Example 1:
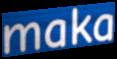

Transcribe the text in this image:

maka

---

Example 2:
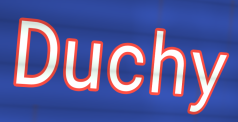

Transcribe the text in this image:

Duchy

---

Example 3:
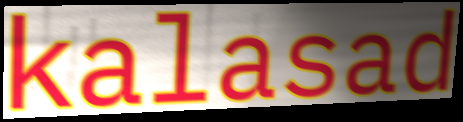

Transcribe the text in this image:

kalasad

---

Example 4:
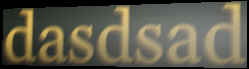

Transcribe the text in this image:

dasdsad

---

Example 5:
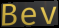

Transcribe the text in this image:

Bev